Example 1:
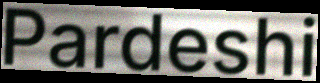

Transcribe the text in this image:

Pardeshi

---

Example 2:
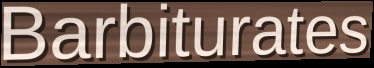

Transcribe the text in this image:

Barbiturates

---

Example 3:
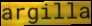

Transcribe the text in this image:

argilla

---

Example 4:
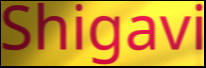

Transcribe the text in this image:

Shigavi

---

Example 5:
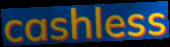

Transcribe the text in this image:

cashless